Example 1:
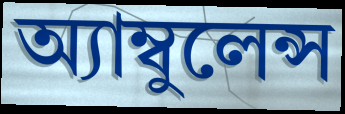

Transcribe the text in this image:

অ্যাম্বুলেন্স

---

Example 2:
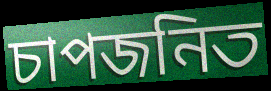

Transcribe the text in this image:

চাপজনিত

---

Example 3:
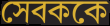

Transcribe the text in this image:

সেবককে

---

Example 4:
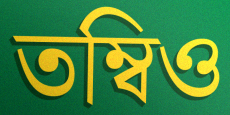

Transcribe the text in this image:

তম্বিও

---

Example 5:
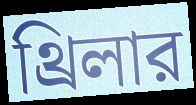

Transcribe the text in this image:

থ্রিলার